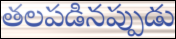
తలపడినప్పుడు